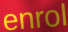
enrol